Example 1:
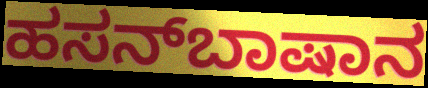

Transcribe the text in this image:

ಹಸನ್‌ಬಾಷಾನ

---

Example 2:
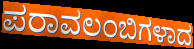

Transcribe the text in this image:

ಪರಾವಲಂಬಿಗಳಾದ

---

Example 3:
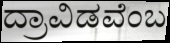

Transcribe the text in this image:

ದ್ರಾವಿಡವೆಂಬ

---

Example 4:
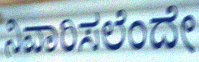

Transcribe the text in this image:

ನಿವಾರಿಸಲೆಂದೇ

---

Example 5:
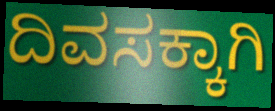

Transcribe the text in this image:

ದಿವಸಕ್ಕಾಗಿ